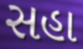
સહા